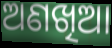
ଅଣଖିଆ